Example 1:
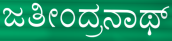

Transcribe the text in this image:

ಜತೀಂದ್ರನಾಥ್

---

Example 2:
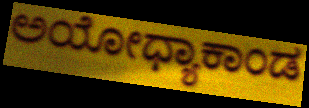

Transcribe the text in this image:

ಅಯೋಧ್ಯಾಕಾಂಡ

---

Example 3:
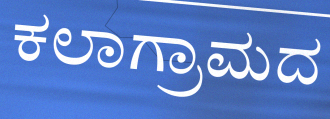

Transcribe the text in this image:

ಕಲಾಗ್ರಾಮದ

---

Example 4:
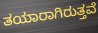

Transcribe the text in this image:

ತಯಾರಾಗಿರುತ್ತವೆ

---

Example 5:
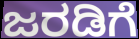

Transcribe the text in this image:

ಜರಡಿಗೆ